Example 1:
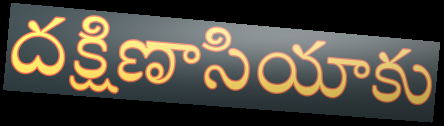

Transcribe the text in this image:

దక్షిణాసియాకు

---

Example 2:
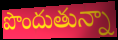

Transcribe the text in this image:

పొందుతున్నా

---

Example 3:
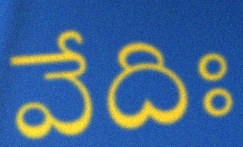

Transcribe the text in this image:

వేదిః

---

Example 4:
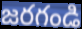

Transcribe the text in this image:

జరగండి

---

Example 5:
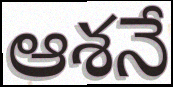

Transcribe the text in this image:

ఆశనే